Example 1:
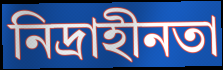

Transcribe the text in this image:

নিদ্ৰাহীনতা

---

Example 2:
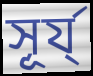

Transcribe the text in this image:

সূৰ্য্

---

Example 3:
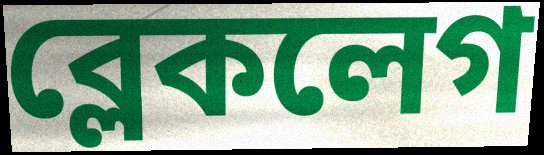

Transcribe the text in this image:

ব্লেকলেগ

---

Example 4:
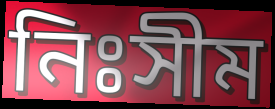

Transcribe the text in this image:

নিঃসীম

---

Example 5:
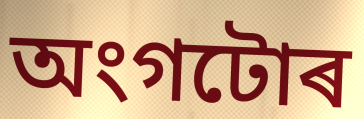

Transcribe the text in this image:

অংগটোৰ